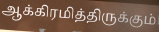
ஆக்கிரமித்திருக்கும்